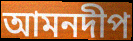
আমনদীপ